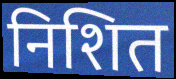
निशित